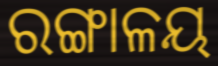
ରଙ୍ଗାଳୟ